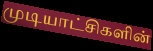
முடியாட்சிகளின்